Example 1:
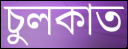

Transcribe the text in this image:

চুলকাত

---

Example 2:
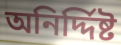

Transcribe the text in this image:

অনির্দ্দিষ্ট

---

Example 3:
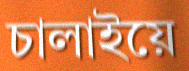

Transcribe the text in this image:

চালাইয়ে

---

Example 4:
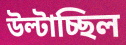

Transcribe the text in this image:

উল্টাচ্ছিল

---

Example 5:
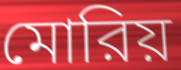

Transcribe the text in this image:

মোরিয়